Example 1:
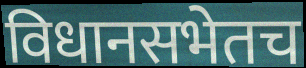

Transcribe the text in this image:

विधानसभेतच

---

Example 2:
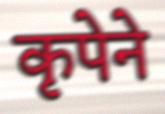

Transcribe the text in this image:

कृपेने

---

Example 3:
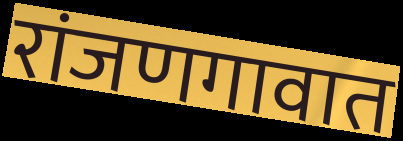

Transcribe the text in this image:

रांजणगावात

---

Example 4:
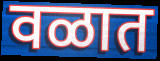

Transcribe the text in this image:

वळात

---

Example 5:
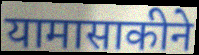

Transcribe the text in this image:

यामासाकीने